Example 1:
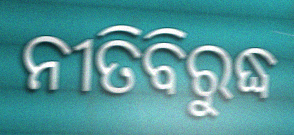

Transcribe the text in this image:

ନୀତିବିରୁଦ୍ଧ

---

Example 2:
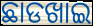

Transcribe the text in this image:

ଛାଡଖାଇ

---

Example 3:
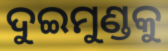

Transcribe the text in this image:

ଦୁଇମୁଣ୍ଡକୁ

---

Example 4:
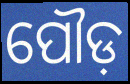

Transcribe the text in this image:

ପୌଡ଼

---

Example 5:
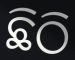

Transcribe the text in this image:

ଛିଠି